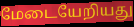
மேடையேறியது